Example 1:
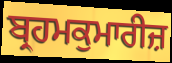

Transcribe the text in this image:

ਬ੍ਰਹਮਕੁਮਾਰੀਜ਼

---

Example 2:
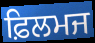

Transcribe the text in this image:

ਫ਼ਿਲਮਜ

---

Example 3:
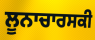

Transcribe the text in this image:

ਲੂਨਾਚਾਰਸਕੀ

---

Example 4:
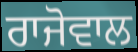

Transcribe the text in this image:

ਰਾਜੋਵਾਲ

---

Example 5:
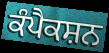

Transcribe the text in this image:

ਕੰਪੈਕਸ਼ਨ